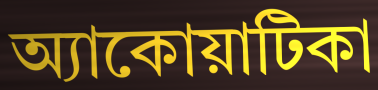
অ্যাকোয়াটিকা